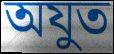
অযুত